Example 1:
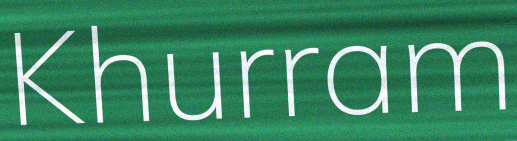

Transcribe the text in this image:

Khurram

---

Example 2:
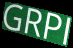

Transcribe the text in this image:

GRPI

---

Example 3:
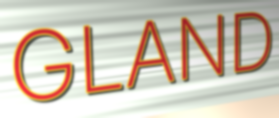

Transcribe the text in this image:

GLAND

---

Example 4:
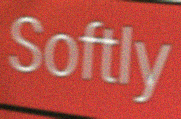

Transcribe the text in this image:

Softly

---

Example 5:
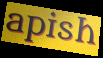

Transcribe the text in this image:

apish